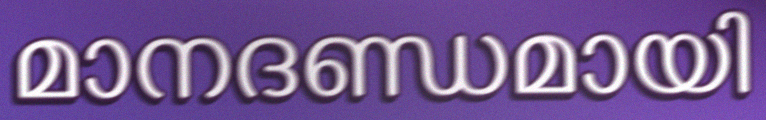
മാനദണ്ഡമായി